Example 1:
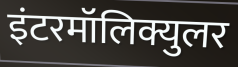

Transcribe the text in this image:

इंटरमॉलिक्युलर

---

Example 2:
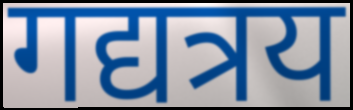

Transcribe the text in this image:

गद्यत्रय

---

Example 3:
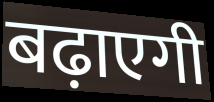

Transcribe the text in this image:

बढ़ाएगी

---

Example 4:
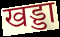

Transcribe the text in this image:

खड्डा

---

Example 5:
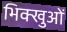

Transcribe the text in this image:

भिक्खुओं